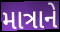
માત્રાને